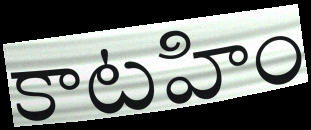
కాటహిం